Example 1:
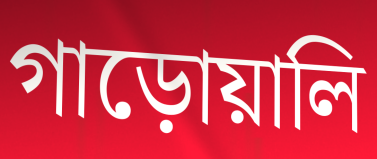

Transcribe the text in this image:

গাড়োয়ালি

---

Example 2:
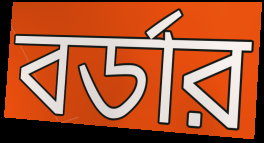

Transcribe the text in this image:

বর্ডার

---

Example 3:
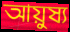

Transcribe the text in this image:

আয়ুষ্য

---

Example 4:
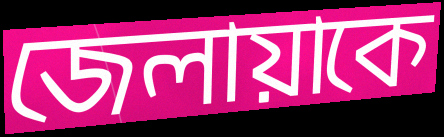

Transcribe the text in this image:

জেলায়াকে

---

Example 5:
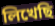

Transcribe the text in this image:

লিখেছি